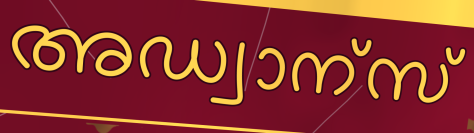
അഡ്വാന്സ്